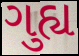
ગુહ્ય